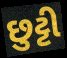
છુટ્ટી